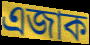
এজাক